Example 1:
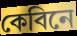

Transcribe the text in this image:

কেবিনে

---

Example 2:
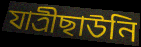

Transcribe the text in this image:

যাত্রীছাউনি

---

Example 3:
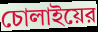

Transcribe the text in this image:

চোলাইয়ের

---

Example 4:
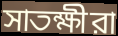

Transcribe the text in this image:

সাতক্ষীরা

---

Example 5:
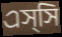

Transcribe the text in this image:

এস্‌সি